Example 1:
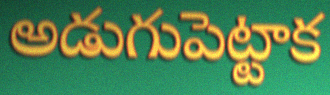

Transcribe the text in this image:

అడుగుపెట్టాక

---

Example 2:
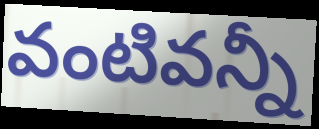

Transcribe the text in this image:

వంటివన్నీ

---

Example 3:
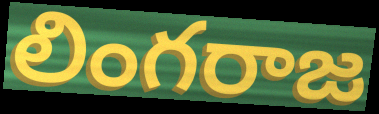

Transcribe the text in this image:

లింగరాజ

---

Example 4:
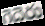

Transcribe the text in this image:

గెదెరు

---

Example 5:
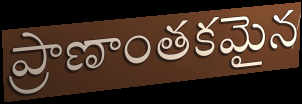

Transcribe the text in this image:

ప్రాణాంతకమైన